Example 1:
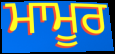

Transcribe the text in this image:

ਮਾਮੂਰ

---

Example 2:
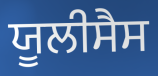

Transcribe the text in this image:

ਯੂਲੀਸੈਸ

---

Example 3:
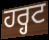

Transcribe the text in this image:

ਹਰ੍ਹਟ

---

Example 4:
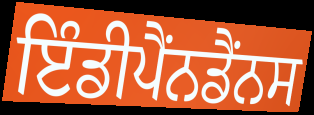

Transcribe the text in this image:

ਇੰਡੀਪੈਂਨਡੈਂਨਸ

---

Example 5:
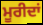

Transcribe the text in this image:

ਮੂਰੀਦਾਂ